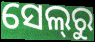
ସେଲ୍‌ରୁ